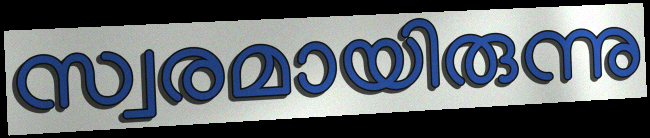
സ്വരമായിരുന്നു